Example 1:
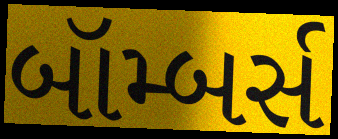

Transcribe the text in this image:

બૉમ્બર્સ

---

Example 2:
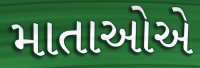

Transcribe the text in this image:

માતાઓએ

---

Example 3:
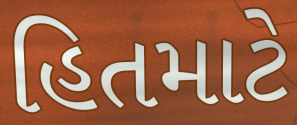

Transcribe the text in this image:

હિતમાટે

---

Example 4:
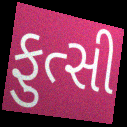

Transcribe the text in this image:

ફુત્સી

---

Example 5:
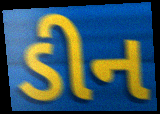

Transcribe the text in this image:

ડીન